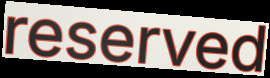
reserved